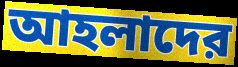
আহলাদের